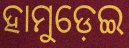
ହାମୁଡ଼େଇ